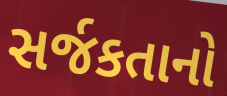
સર્જકતાનો